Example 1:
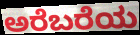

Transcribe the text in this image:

ಅರೆಬರೆಯ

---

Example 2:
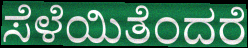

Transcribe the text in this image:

ಸೆಳೆಯಿತೆಂದರೆ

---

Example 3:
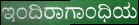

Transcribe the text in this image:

ಇಂದಿರಾಗಾಂಧಿಯ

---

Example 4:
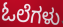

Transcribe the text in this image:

ಓಲೆಗಳು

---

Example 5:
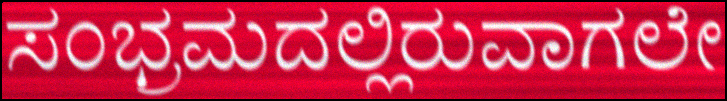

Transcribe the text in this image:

ಸಂಭ್ರಮದಲ್ಲಿರುವಾಗಲೇ